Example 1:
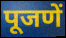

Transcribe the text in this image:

पूजणें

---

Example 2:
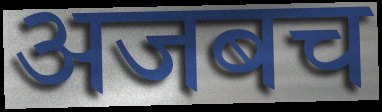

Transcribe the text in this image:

अजबच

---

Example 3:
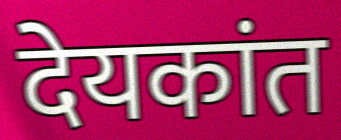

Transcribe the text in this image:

देयकांत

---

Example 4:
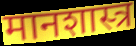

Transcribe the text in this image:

मानशास्त्र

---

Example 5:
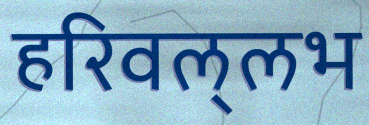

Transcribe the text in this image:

हरिवल्लभ